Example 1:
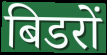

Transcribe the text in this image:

बिडरों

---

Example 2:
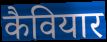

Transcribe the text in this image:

कैवियार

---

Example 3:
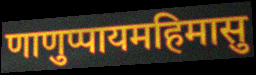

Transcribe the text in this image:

णाणुप्पायमहिमासु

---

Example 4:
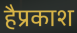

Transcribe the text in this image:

हैप्रकाश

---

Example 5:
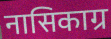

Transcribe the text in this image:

नासिकाग्र